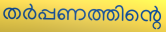
തർപ്പണത്തിന്റെ